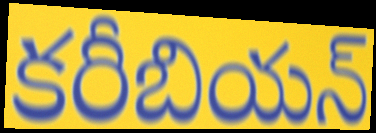
కరీబియన్